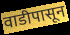
वाडीपासून